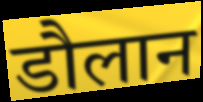
डौलान